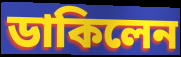
ডাকিলেন